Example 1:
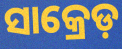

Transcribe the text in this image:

ସାକ୍ରେଡ଼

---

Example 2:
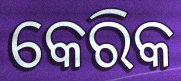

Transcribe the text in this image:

କେରିକ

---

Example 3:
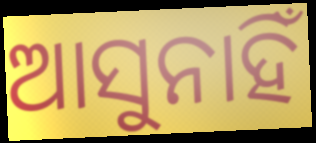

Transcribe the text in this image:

ଆସୁନାହିଁ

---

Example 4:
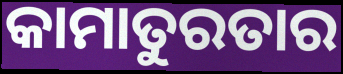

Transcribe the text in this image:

କାମାତୁରତାର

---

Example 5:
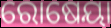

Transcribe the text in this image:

ରୋଷେୟା